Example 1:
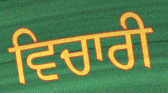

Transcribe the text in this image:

ਵਿਚਾਰੀ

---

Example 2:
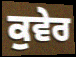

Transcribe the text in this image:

ਕੁਵੇਰ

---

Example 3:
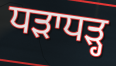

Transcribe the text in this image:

ਧੜਾਧੜ੍ਹ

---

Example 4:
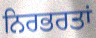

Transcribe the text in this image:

ਨਿਰਭਰਤਾਂ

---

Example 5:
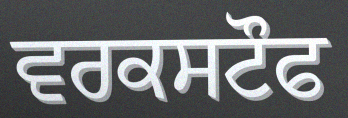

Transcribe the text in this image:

ਵਰਕਸਟੌਫ